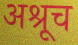
अश्रूच